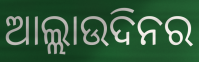
ଆଲ୍ଲାଉଦିନର